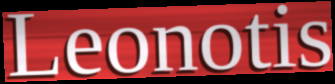
Leonotis